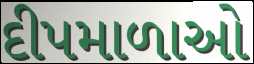
દીપમાળાઓ